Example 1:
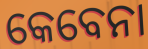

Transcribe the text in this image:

କେବେନା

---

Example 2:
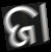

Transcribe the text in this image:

ଜା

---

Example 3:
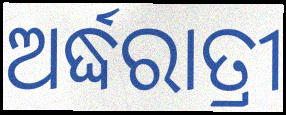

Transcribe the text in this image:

ଅର୍ଦ୍ଧରାତ୍ରୀ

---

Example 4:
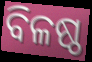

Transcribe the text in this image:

ବିଳଷ୍ଠ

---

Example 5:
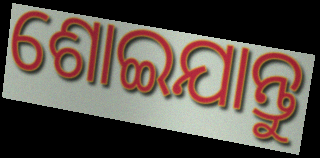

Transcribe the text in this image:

ଶୋଇଯାନ୍ତୁ